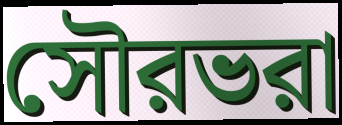
সৌরভরা